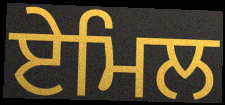
ਏਮਿਲ